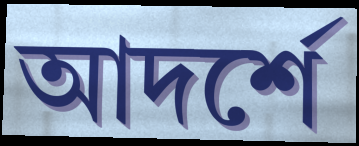
আদর্শে